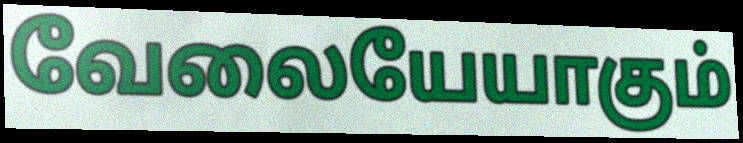
வேலையேயாகும்